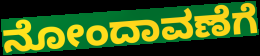
ನೋಂದಾವಣೆಗೆ